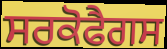
ਸਰਕੋਫੈਗਸ